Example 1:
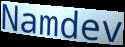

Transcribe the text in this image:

Namdev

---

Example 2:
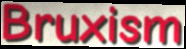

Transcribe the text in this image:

Bruxism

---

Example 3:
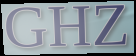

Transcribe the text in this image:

GHZ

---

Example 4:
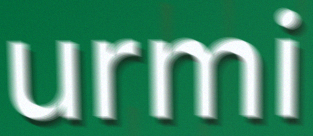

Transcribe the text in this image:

urmi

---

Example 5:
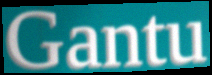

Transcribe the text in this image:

Gantu